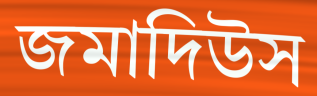
জমাদিউস